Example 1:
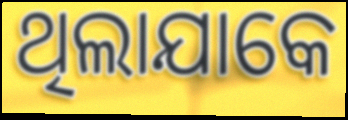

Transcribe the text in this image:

ଥିଲାଯାକେ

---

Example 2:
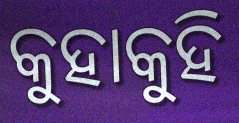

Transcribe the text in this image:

କୁହାକୁହି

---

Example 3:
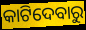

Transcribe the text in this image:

କାଟିଦେବାରୁ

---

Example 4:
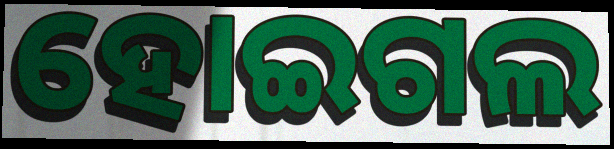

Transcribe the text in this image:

ହୋଇଗଲ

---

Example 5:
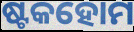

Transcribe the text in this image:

ଷ୍ଟକହୋମ